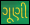
ગૂણી